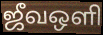
ஜீவஒளி